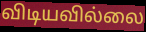
விடியவில்லை